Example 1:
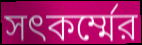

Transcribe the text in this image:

সৎকর্ম্মের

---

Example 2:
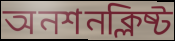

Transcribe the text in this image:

অনশনক্লিষ্ট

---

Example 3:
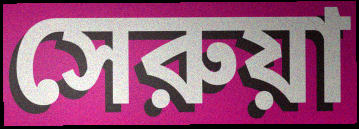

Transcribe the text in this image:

সেরুয়া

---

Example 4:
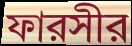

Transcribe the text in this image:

ফারসীর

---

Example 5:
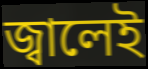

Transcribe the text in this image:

জ্বালেই